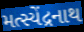
મત્સ્યેંદ્રનાથ